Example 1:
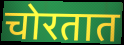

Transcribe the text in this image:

चोरतात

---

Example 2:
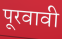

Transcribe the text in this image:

पूरवावी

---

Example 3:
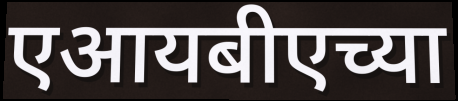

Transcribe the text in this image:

एआयबीएच्या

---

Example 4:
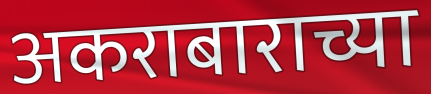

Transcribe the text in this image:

अकराबाराच्या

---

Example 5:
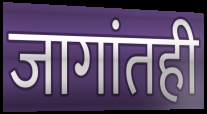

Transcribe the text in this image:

जागांतही